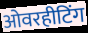
ओवरहीटिंग